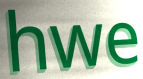
hwe